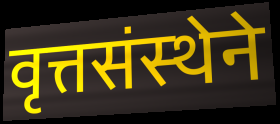
वृत्तसंस्थेने